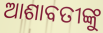
ଆଶାବତୀଙ୍କୁ